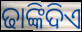
ଢାଙ୍କିଦିଏ